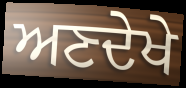
ਅਣਦੇਖੇ